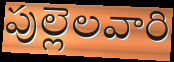
పుల్లెలవారి